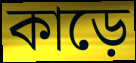
কাড়ে